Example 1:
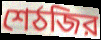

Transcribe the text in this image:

শেঠজির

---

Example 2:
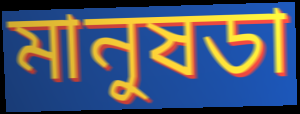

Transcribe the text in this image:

মানুষডা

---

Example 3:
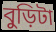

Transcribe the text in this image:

বুড়িটা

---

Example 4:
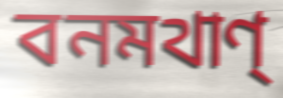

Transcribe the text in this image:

বনমথাণ্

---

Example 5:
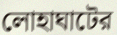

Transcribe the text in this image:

লোহাঘাটের